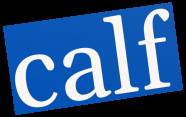
calf